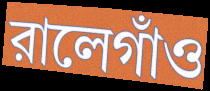
রালেগাঁও